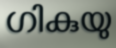
ഗികുയു